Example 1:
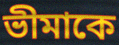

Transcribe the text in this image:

ভীমাকে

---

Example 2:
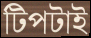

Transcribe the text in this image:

টিপটাই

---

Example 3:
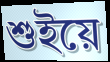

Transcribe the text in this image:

শুইয়ে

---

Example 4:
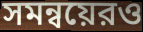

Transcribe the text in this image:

সমন্বয়েরও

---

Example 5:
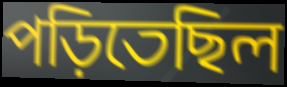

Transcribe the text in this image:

পড়িতেছিল